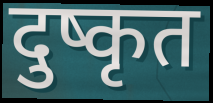
दुष्कृत